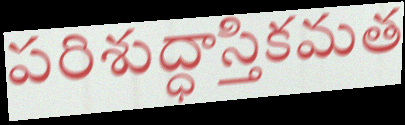
పరిశుద్ధాస్తికమత